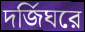
দর্জিঘরে